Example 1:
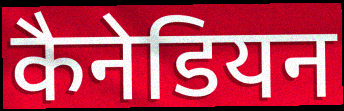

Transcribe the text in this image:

कैनेडियन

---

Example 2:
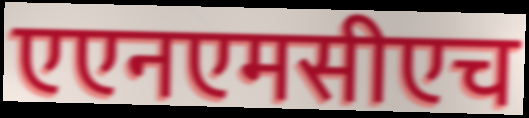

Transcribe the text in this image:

एएनएमसीएच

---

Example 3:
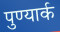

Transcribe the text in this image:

पुण्यार्क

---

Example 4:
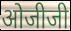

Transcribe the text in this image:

ओजीजी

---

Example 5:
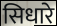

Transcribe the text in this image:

सिधारे